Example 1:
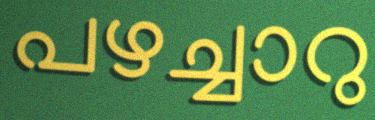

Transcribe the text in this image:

പഴച്ചാറു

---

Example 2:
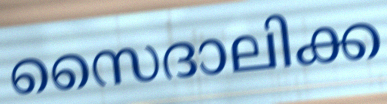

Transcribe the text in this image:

സൈദാലിക്ക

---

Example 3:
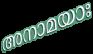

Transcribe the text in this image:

അനാമയാഃ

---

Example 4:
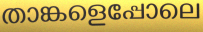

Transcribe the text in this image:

താങ്കളെപ്പോലെ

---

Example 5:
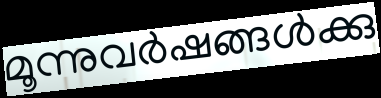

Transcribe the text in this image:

മൂന്നുവർഷങ്ങൾക്കു